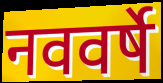
नववर्षे